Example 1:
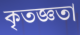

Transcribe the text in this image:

কৃতজ্ঞতা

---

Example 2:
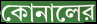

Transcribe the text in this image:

কোনালের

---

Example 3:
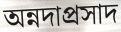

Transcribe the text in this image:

অন্নদাপ্রসাদ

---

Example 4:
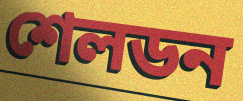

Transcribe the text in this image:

শেলডন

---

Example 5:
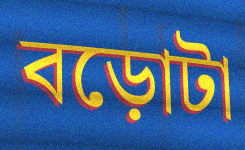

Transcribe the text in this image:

বড়োটা